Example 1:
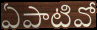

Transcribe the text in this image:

ఏపాటివో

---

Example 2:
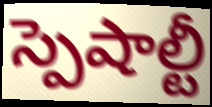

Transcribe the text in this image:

స్పెషాల్టీ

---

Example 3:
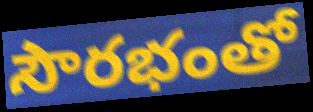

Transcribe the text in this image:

సౌరభంతో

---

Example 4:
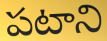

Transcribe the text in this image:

పటాని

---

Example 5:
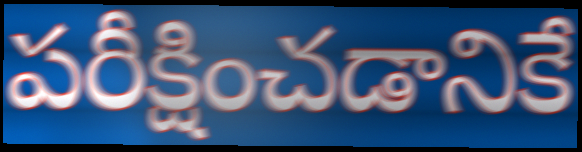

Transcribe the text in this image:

పరీక్షించడానికే